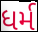
ધર્મ